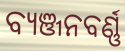
ବ୍ୟଞ୍ଜନବର୍ଣ୍ଣ